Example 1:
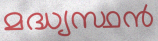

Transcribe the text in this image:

മദ്ധ്യസ്ഥൻ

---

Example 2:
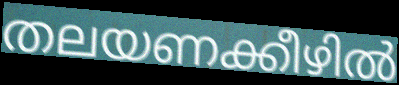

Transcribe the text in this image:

തലയണക്കീഴിൽ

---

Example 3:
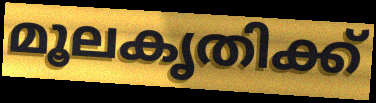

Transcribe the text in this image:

മൂലകൃതിക്ക്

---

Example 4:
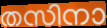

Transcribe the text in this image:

തസിനാ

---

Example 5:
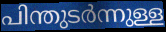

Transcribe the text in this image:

പിന്തുടർന്നുള്ള